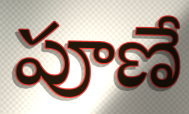
పూణే